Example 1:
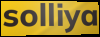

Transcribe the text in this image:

solliya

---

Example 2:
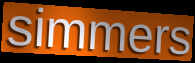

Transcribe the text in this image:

simmers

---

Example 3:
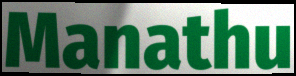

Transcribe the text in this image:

Manathu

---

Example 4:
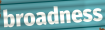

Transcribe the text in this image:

broadness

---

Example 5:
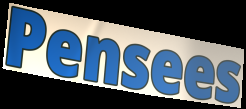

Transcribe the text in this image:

Pensees